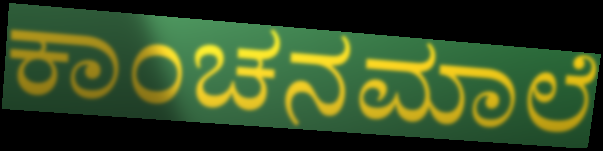
ಕಾಂಚನಮಾಲೆ